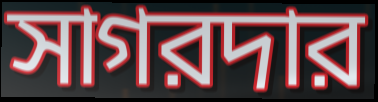
সাগরদার